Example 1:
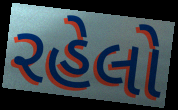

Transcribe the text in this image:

રહેલો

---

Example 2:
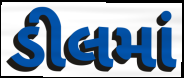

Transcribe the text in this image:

ડીલમાં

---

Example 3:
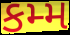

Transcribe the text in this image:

કમ્મ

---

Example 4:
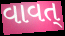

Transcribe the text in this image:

વાવત્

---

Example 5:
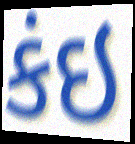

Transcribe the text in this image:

કંઇ